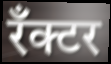
रँक्टर